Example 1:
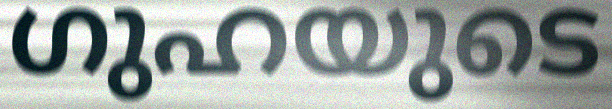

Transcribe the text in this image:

ഗുഹയുടെ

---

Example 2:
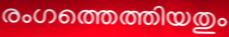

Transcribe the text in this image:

രംഗത്തെത്തിയതും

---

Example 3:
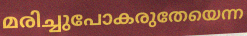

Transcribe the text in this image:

മരിച്ചുപോകരുതേയെന്ന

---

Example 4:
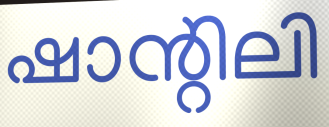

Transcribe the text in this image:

ഷാന്റിലി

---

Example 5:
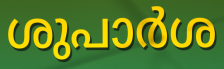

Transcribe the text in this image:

ശുപാർശ